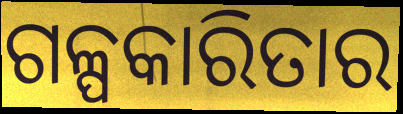
ଗଳ୍ପକାରିତାର